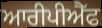
ਆਰੀਪੀਐੱਫ